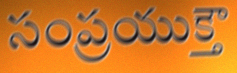
సంప్రయుక్తౌ